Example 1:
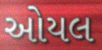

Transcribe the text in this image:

ઓયલ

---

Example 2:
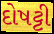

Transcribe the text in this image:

દોષટ્ટી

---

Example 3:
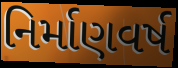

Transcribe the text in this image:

નિર્માણવર્ષ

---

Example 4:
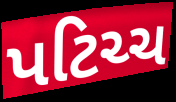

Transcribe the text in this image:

પટિચ્ચ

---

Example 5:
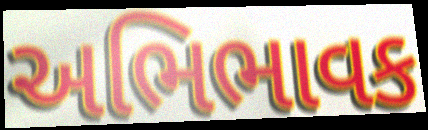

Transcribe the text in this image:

અભિભાવક